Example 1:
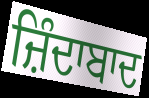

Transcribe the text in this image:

ਜ਼ਿੰਦਾਬਾਦ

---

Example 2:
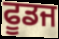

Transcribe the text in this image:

ਫੂਡਜ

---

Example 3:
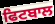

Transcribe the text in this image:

ਫਿਟਬਾਲ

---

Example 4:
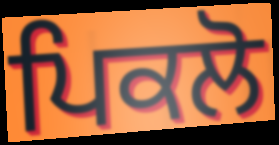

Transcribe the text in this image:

ਪਿਕਲੋ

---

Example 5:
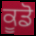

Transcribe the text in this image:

ਕੂਡੋ